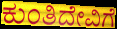
ಕುಂತಿದೇವಿಗೆ